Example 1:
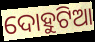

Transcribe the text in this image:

ଦୋହୁଟିଆ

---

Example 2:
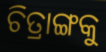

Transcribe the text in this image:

ଚିତ୍ରାଙ୍ଗକୁ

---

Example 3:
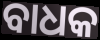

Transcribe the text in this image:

ବାଧକ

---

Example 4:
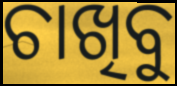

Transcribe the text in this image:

ଚାଖିବୁ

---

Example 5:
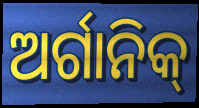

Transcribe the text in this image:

ଅର୍ଗାନିକ୍